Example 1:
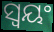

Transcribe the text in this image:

ସ୍ଵୟଂ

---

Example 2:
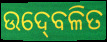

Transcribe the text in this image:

ଉଦ୍‍ବେଳିତ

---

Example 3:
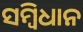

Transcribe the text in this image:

ସମ୍ୱିଧାନ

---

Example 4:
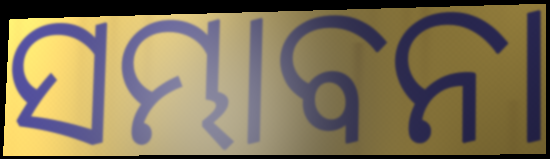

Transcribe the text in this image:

ସମ୍ଭାବନା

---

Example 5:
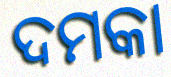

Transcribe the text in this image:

ଦମକା